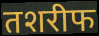
तशरीफ